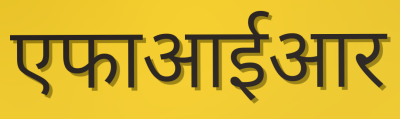
एफाआईआर